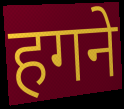
हगने